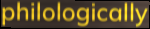
philologically